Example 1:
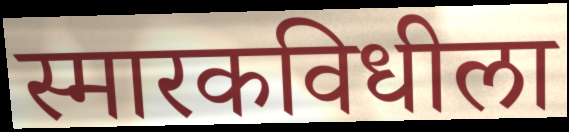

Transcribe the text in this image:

स्मारकविधीला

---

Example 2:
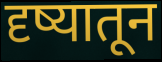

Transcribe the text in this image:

दृष्यातून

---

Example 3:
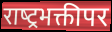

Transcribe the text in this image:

राष्ट्रभक्तीपर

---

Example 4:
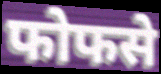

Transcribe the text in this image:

फोफसे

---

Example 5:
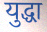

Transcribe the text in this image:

युद्धा